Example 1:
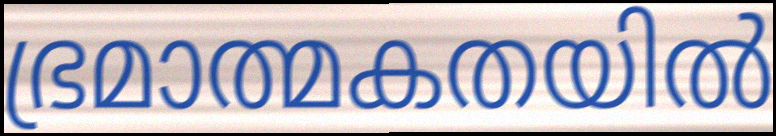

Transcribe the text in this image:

ഭ്രമാത്മകതയിൽ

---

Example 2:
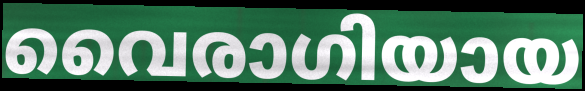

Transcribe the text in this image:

വൈരാഗിയായ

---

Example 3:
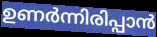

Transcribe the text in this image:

ഉണർന്നിരിപ്പാൻ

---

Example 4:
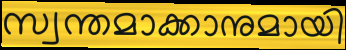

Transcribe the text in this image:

സ്വന്തമാക്കാനുമായി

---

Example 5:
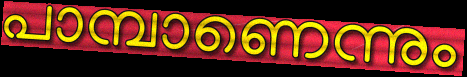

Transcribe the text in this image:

പാമ്പാണെന്നും